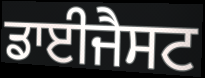
ਡਾਈਜੈਸਟ